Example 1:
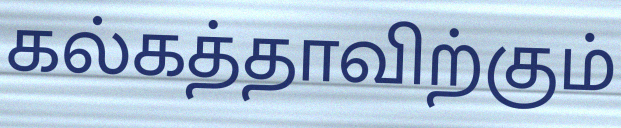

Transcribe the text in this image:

கல்கத்தாவிற்கும்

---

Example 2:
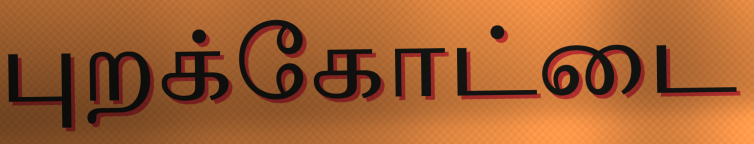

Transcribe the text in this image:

புறக்கோட்டை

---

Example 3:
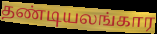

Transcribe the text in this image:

தண்டியலங்கார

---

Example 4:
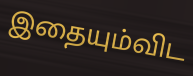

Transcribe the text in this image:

இதையும்விட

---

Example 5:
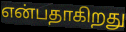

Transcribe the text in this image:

என்பதாகிறது